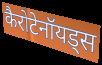
कैरोटेनॉयड्स